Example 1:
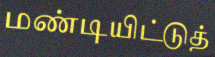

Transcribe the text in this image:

மண்டியிட்டுத்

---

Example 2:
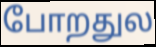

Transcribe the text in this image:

போறதுல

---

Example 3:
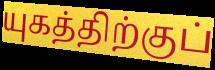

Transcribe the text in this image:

யுகத்திற்குப்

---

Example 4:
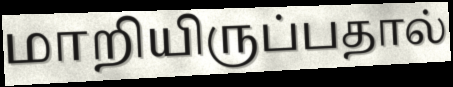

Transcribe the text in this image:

மாறியிருப்பதால்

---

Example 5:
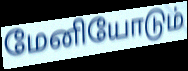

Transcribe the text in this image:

மேனியோடும்